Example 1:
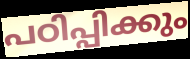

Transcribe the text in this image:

പഠിപ്പിക്കും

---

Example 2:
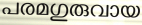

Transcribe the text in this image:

പരമഗുരുവായ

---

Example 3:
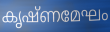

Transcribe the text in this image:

കൃഷ്ണമേഘം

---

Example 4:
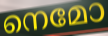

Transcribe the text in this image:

നെമോ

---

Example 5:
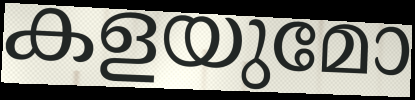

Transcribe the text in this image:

കളയുമോ